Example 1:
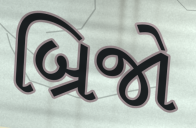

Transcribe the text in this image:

બ્રિજો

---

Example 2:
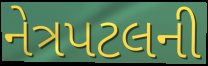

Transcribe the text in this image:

નેત્રપટલની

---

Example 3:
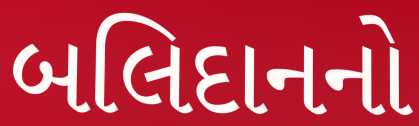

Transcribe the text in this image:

બલિદાનનો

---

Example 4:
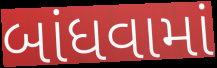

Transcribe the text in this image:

બાંધવામાં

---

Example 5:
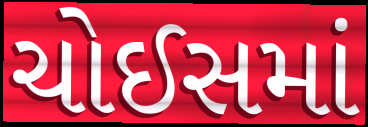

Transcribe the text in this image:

ચોઈસમાં